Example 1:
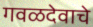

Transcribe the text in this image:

गवळदेवाचे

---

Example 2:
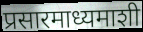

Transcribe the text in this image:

प्रसारमाध्यमाशी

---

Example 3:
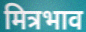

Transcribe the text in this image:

मित्रभाव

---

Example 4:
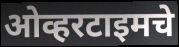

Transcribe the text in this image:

ओव्हरटाइमचे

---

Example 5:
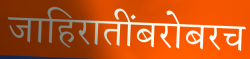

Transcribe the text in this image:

जाहिरातींबरोबरच